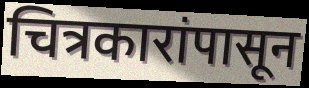
चित्रकारांपासून